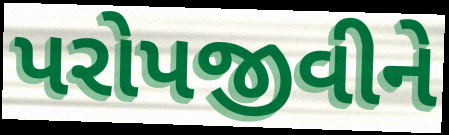
પરોપજીવીને